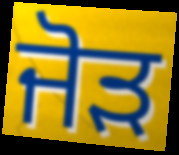
ਜੋੜ